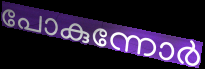
പോകുന്നോർ